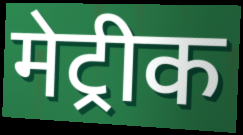
मेट्रीक